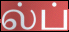
ல்ப்